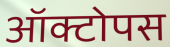
ऑक्टोपस